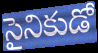
సైనికుడో